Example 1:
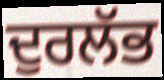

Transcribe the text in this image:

ਦੁਰਲੱਭ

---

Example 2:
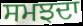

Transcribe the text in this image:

ਸਮਝਦਾ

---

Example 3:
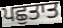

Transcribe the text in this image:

ਪਛੁਤਾਤ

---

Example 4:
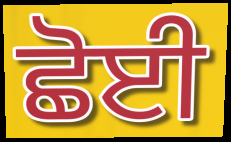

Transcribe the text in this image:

ਛੋਈ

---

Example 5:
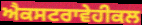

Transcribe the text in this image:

ਐਕਸਟਰਾਵੇਹੀਕਲ